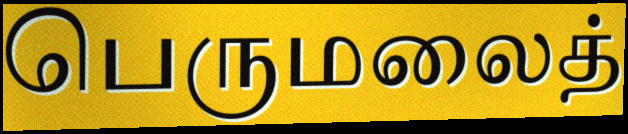
பெருமலைத்